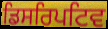
ਡਿਸਰਿਪਟਿਵ